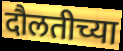
दौलतीच्या